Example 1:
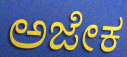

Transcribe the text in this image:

ಅಜೇಕ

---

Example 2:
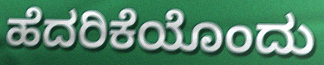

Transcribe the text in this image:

ಹೆದರಿಕೆಯೊಂದು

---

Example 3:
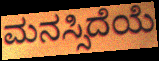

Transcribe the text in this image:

ಮನಸ್ಸಿದೆಯೆ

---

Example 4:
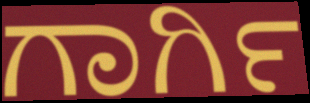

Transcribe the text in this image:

ಗಾರ್ಗಿ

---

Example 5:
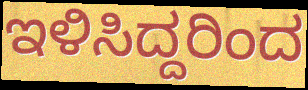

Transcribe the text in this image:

ಇಳಿಸಿದ್ದರಿಂದ